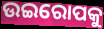
ଉଇରୋପକୁ